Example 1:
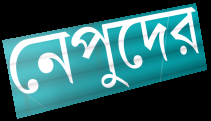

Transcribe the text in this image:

নেপুদের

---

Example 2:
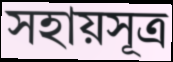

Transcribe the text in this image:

সহায়সূত্র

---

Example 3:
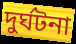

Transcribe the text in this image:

দুর্ঘটনা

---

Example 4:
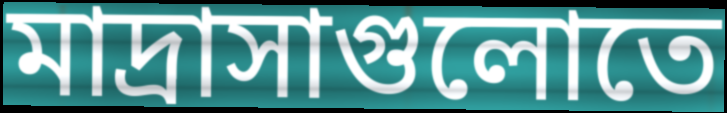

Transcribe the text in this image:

মাদ্রাসাগুলোতে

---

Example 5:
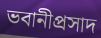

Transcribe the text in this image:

ভবানীপ্রসাদ